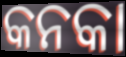
କନକା